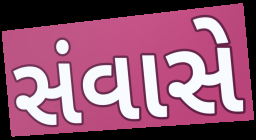
સંવાસે